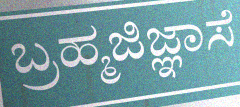
ಬ್ರಹ್ಮಜಿಜ್ಞಾಸೆ